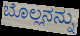
ಬೊಲ್ಲನನ್ನು